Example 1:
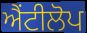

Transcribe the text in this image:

ਐਂਟੀਲੋਪ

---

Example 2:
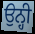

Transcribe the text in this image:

ਉਨ੍ਹੀ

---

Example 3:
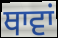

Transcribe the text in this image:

ਥਾਵਾਂ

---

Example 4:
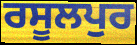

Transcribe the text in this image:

ਰਸੂਲਪੁਰ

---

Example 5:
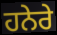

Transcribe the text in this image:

ਹਨੇਰੇ